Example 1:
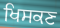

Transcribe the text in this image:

ਖਿਸਕਣ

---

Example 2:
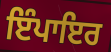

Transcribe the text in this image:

ਇੰਪਾਇਰ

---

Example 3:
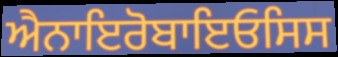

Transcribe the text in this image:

ਐਨਾਇਰੋਬਾਇਓਸਿਸ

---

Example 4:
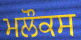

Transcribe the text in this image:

ਮਲੌਕਸ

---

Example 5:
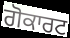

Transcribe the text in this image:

ਗੋਕਾਰਟ